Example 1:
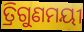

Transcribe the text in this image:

ତ୍ରିଗୁଣମୟୀ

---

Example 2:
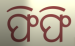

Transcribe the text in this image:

ଫିଫି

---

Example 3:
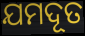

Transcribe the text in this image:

ଯମଦୂତ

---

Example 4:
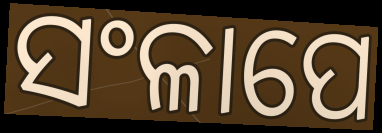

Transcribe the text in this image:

ସଂଳାପେ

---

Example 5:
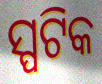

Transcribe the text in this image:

ସ୍ପଟିକ